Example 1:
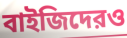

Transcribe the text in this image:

বাইজিদেরও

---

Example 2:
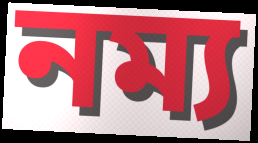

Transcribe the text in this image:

নম্য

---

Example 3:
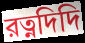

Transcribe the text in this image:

রত্নদিদি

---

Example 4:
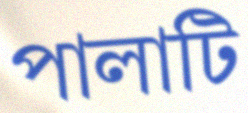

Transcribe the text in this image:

পালাটি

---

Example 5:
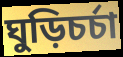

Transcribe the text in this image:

ঘুড়িচর্চা